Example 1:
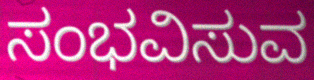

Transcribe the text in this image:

ಸಂಭವಿಸುವ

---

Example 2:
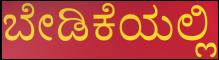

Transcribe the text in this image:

ಬೇಡಿಕೆಯಲ್ಲಿ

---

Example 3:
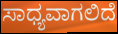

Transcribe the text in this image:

ಸಾಧ್ಯವಾಗಲಿದೆ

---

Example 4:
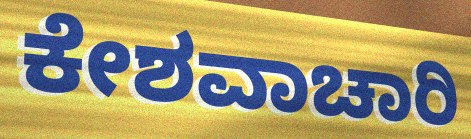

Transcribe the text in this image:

ಕೇಶವಾಚಾರಿ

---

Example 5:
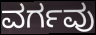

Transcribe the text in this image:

ವರ್ಗವು